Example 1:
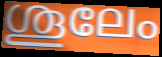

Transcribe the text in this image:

ശൂലേം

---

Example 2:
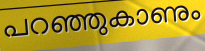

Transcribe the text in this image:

പറഞ്ഞുകാണും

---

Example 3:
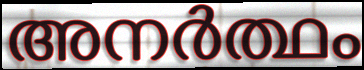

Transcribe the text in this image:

അനർത്ഥം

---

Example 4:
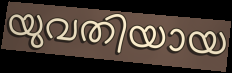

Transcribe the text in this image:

യുവതിയായ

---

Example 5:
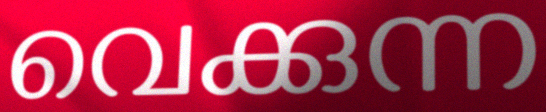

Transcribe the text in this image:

വെക്കുന്ന